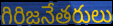
గిరిజనేతరులు